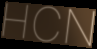
HCN